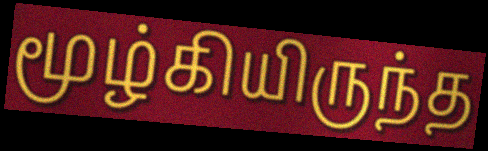
மூழ்கியிருந்த